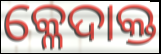
କ୍ଳେଦାକ୍ତ